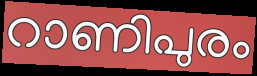
റാണിപുരം